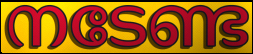
നടേണ്ട